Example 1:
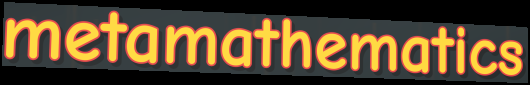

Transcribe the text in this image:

metamathematics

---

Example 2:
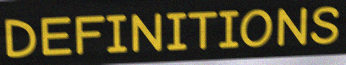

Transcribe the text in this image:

DEFINITIONS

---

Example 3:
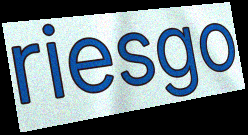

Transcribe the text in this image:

riesgo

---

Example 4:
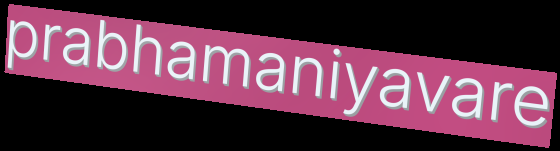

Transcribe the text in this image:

prabhamaniyavare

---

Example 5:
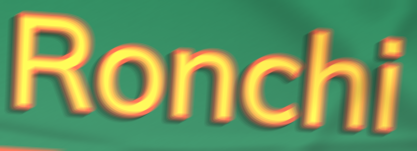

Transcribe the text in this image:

Ronchi